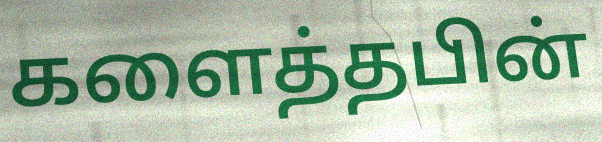
களைத்தபின்